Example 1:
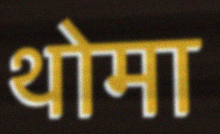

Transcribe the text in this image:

थोमा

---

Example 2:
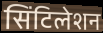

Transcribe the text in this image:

सिंटिलेशन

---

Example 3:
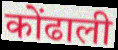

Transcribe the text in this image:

कोंढाली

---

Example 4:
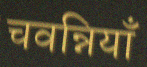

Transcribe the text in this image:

चवन्नियाँ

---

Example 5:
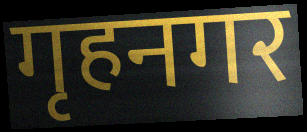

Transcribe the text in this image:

गृहनगर